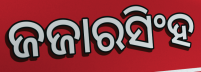
ଜଜାରସିଂହ